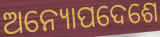
ଅନ୍ୟୋପଦେଶେ